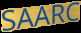
SAARC